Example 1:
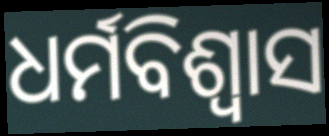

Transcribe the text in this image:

ଧର୍ମବିଶ୍ବାସ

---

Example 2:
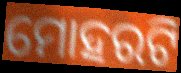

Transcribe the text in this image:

ମୋହରଟି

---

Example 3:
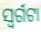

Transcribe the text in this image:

ସ୍ୱର୍ଗଟା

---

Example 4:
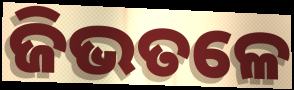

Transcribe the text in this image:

ଜିଭତଳେ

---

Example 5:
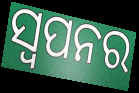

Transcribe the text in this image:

ସ୍ୱପନର